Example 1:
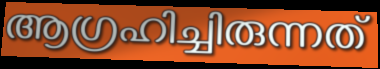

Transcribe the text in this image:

ആഗ്രഹിച്ചിരുന്നത്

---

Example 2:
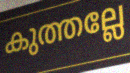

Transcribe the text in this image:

കുത്തല്ലേ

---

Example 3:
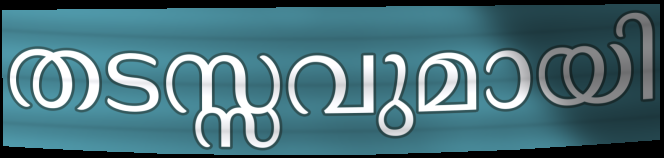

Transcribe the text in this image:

തടസ്സവുമായി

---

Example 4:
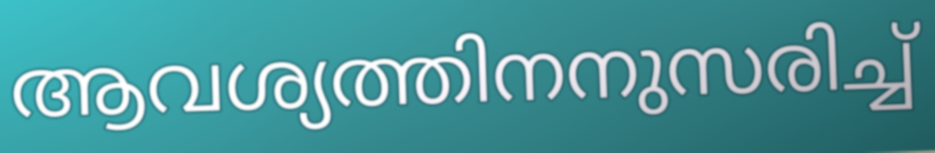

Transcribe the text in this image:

ആവശ്യത്തിനനുസരിച്ച്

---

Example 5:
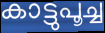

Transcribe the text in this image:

കാട്ടുപൂച്ച